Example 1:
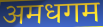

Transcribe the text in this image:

अमधगम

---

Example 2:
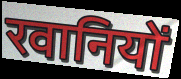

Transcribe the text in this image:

रवानियों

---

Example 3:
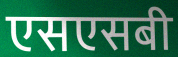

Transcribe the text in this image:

एसएसबी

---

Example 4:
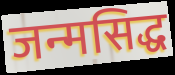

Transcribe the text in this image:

जन्मसिद्ध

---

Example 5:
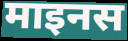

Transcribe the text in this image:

माइनस